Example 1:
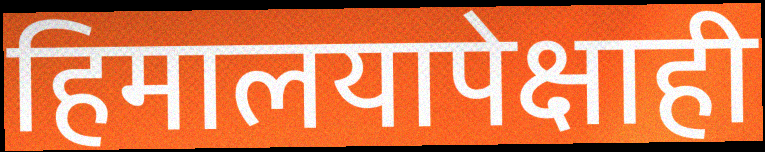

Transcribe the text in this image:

हिमालयापेक्षाही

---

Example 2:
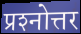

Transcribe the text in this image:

प्रश्नोत्तर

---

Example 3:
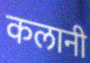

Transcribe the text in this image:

कलानी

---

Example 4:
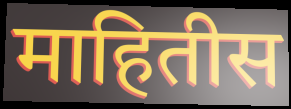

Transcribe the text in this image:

माहितीस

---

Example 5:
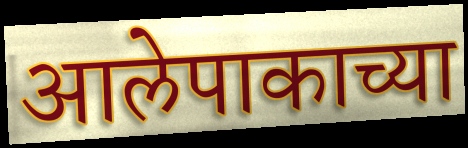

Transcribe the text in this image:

आलेपाकाच्या